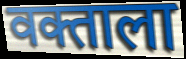
वक्ताला